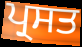
ਪ੍ਰਸਤ